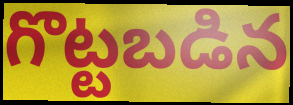
గొట్టబడిన